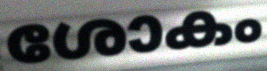
ശോകം